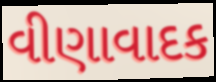
વીણાવાદક